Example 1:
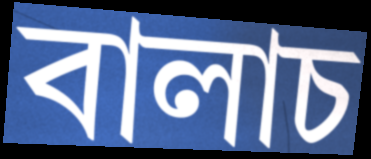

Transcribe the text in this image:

বালাচ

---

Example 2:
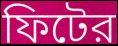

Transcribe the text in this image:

ফিটের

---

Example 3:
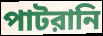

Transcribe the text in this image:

পাটরানি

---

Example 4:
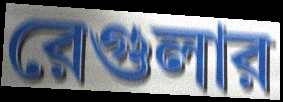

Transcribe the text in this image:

রেগুলার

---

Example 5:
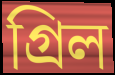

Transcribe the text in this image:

গ্রিল